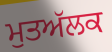
ਮੁਤਅੱਲਕ